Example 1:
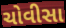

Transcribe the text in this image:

ચોવીસા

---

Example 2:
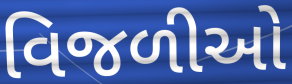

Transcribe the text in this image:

વિજળીઓ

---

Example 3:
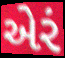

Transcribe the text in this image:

એરં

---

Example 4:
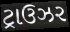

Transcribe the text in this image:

ટ્રાઉઝર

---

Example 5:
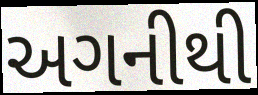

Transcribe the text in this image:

અગનીથી